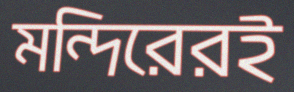
মন্দিরেরই